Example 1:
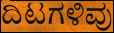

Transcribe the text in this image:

ದಿಟಗಳಿವು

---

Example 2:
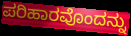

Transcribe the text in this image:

ಪರಿಹಾರವೊಂದನ್ನು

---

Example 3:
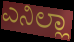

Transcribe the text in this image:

ಎನಿಲ್ಲಾ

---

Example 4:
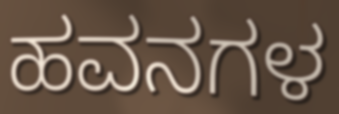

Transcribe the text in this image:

ಹವನಗಳ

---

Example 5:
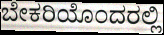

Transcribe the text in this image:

ಬೇಕರಿಯೊಂದರಲ್ಲಿ